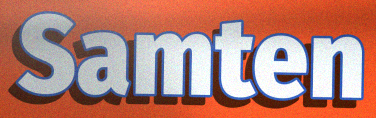
Samten